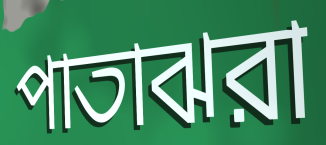
পাতাঝরা